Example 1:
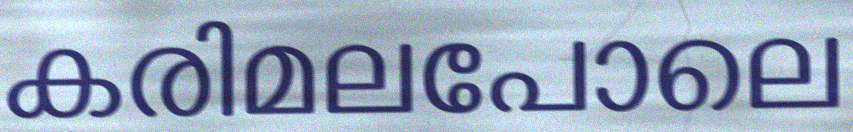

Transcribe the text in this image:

കരിമലപോലെ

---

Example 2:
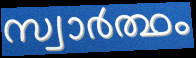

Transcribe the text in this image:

സ്വാർത്ഥം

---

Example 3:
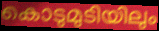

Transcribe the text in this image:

കൊടുമുടിയിലും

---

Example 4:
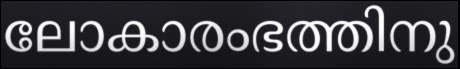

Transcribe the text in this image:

ലോകാരംഭത്തിനു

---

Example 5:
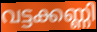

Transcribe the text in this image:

വട്ടക്കണ്ണി